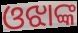
ଓଝାଙ୍କ